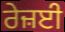
ਰੇਜ਼ਈ